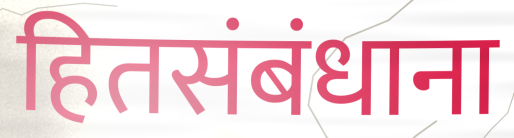
हितसंबंधाना